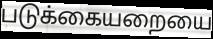
படுக்கையறையை